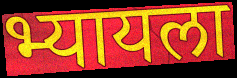
भ्यायला